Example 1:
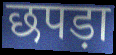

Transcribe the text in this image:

छपड़ा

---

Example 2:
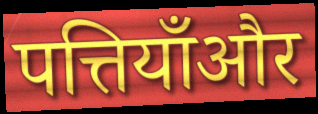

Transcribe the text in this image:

पत्तियाँऔर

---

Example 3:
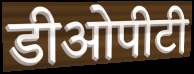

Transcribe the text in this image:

डीओपीटी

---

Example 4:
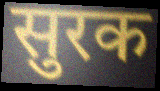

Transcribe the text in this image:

सुरक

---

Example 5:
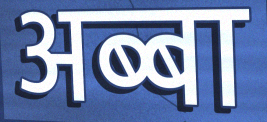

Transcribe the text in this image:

अब्बा